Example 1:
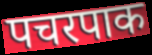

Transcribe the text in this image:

पचरपाक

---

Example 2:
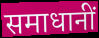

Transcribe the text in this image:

समाधानीं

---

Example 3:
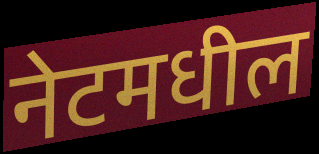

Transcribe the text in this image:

नेटमधील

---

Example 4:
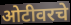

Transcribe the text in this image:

ओटीवरचे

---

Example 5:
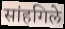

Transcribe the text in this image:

सांहगिले